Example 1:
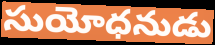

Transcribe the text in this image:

సుయోధనుడు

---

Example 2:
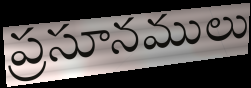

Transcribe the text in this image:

ప్రసూనములు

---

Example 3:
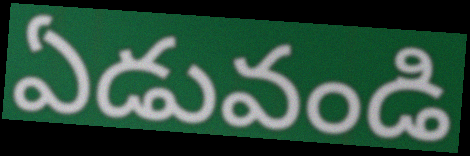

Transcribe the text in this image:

ఏడువండి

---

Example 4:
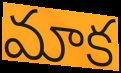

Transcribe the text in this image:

మాక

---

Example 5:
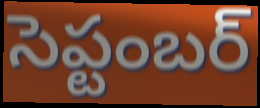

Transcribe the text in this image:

సెప్టంబర్